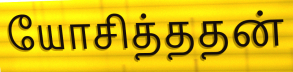
யோசித்ததன்